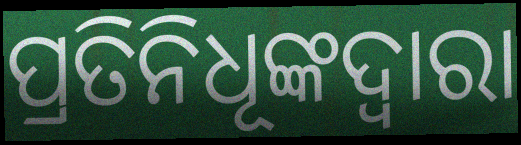
ପ୍ରତିନିଧୂଙ୍କଦ୍ଵାରା